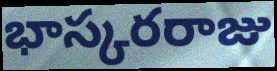
భాస్కరరాజు